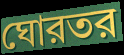
ঘোরতর